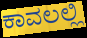
ಕಾವಲಲ್ಲಿ